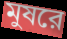
মুষরে